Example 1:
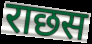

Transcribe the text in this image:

राछस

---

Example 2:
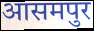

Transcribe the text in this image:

आसमपुर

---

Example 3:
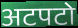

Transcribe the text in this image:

अटपटो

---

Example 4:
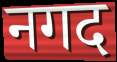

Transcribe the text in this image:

नगद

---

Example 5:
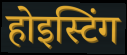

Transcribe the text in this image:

होइस्टिंग